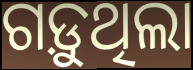
ଗଡ଼ୁଥିଲା